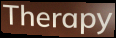
Therapy